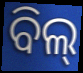
ବିଲ୍